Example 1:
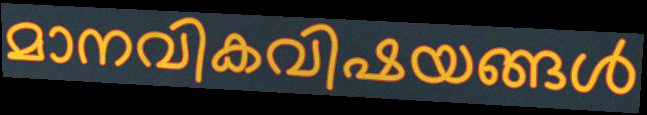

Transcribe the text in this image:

മാനവികവിഷയങ്ങൾ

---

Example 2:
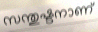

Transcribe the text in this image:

സന്തുഷ്ടനാണ്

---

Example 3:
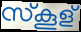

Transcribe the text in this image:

സ്കൂള്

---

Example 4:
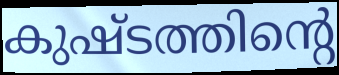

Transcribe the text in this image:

കുഷ്ടത്തിന്റെ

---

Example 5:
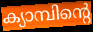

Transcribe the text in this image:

ക്യാമ്പിന്റെ